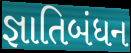
જ્ઞાતિબંધન